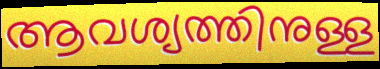
ആവശ്യത്തിനുള്ള